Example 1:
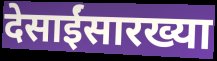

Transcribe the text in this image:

देसाईंसारख्या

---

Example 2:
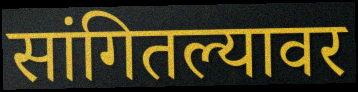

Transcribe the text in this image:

सांगितल्यावर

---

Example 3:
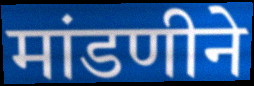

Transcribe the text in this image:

मांडणीने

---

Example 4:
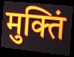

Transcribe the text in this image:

मुक्तिं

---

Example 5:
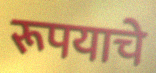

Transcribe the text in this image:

रूपयाचे